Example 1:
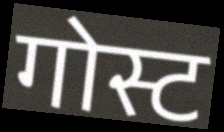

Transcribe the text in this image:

गोस्ट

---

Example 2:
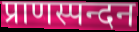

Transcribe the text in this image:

प्राणस्पन्दन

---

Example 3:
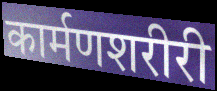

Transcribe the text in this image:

कार्मणशरीरी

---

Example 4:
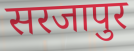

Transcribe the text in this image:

सरजापुर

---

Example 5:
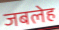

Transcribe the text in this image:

जबलेह